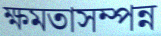
ক্ষমতাসম্পন্ন